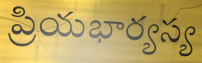
ప్రియభార్యస్య